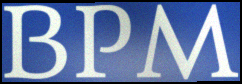
BPM